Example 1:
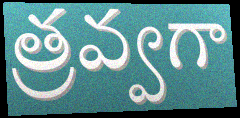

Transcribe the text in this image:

త్రవ్వగా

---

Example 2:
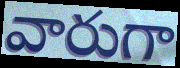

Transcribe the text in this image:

వారుగా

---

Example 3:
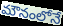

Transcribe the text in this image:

మౌనంలోనే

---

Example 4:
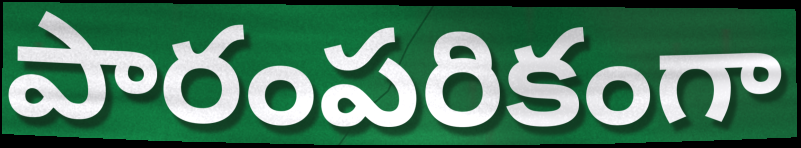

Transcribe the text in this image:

పారంపరికంగా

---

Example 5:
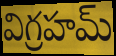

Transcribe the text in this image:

విగ్రహమ్